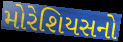
મોરેશિયસનો